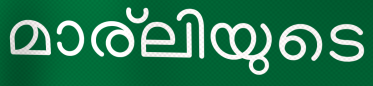
മാര്ലിയുടെ